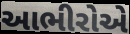
આભીરોએ